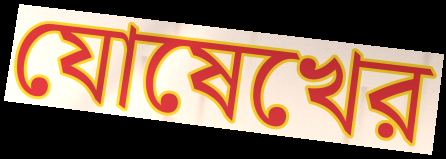
যোষেখের